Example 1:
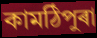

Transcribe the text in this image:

কামঠিপুৰা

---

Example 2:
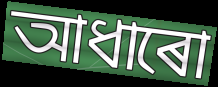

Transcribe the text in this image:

আধাৰো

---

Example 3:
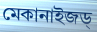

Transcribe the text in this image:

মেকানাইজড্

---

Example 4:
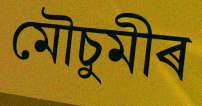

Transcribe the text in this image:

মৌচুমীৰ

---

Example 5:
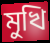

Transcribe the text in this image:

মুখি